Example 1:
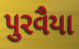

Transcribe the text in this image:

પુરવૈયા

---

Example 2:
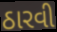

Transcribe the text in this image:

ઠારવી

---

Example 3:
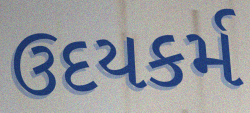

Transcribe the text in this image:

ઉદયકર્મ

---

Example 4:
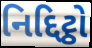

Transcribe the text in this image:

નિદ્દિટ્ઠો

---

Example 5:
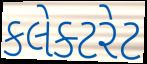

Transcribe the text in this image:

કલેક્ટરેટ